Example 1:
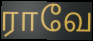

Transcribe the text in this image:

ராவே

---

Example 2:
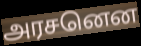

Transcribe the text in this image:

அரசனென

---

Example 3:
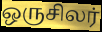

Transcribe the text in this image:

ஒருசிலர்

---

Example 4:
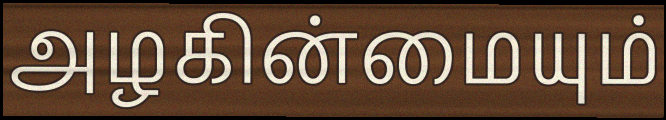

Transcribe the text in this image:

அழகின்மையும்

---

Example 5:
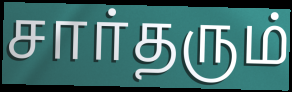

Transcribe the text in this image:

சார்தரும்